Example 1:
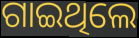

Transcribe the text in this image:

ଗାଇଥିଲେ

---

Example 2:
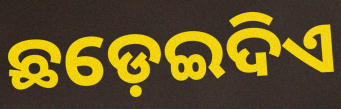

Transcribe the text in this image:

ଛଡ଼େଇଦିଏ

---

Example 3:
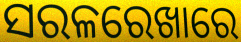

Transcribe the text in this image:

ସରଳରେଖାରେ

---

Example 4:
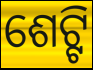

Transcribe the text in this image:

ଶେଟ୍ଟି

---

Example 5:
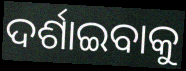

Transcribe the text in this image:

ଦର୍ଶାଇବାକୁ